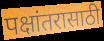
पक्षांतरासाठी